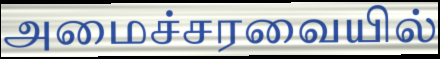
அமைச்சரவையில்